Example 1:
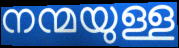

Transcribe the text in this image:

നന്മയുള്ള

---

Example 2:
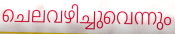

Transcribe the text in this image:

ചെലവഴിച്ചുവെന്നും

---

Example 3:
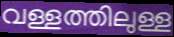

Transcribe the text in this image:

വള്ളത്തിലുള്ള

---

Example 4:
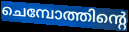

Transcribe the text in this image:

ചെമ്പോത്തിന്റെ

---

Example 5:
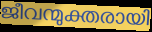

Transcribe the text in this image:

ജീവന്മുക്തരായി